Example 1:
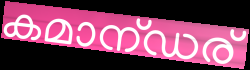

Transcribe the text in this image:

കമാന്ഡര്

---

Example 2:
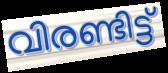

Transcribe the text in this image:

വിരണ്ടിട്ട്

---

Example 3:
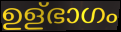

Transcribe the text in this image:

ഉള്ഭാഗം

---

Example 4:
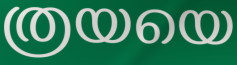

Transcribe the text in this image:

ത്രയയെ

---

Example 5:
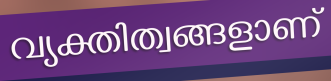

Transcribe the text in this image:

വ്യക്തിത്വങ്ങളാണ്